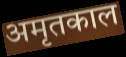
अमृतकाल